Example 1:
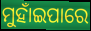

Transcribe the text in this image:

ମୁହାଁଇପାରେ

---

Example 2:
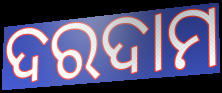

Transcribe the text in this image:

ଦରଦାମ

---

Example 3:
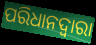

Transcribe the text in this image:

ପରିଧାନଦ୍ୱାରା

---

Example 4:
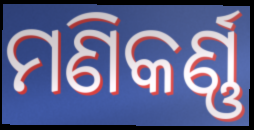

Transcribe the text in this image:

ମଣିକର୍ଣ୍ଣ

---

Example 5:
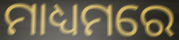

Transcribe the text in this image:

ମାଧ୍ୟମରେ